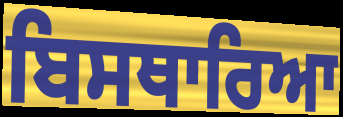
ਬਿਸਥਾਰਿਆ